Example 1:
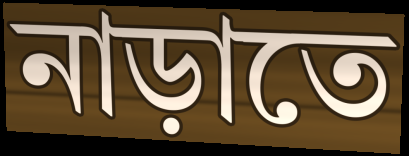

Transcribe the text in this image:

নাড়াতে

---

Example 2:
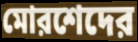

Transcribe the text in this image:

মোরশেদের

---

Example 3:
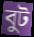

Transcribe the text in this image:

বুট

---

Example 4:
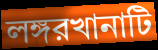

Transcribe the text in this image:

লঙ্গরখানাটি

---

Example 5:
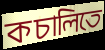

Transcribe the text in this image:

কচালিতে